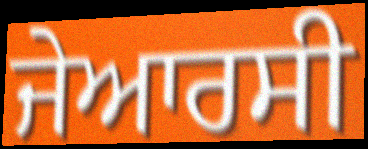
ਜੇਆਰਸੀ